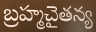
బ్రహ్మచైతన్య